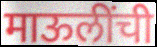
माऊलींची